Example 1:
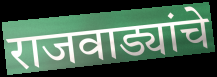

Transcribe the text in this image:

राजवाड्यांचे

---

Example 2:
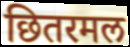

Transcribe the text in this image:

छितरमल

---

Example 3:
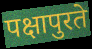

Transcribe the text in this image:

पक्षापुरते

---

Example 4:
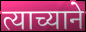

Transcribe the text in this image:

त्याच्याने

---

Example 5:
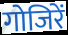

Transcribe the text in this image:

गोजिरें